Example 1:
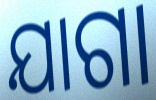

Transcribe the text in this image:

ଯାଗା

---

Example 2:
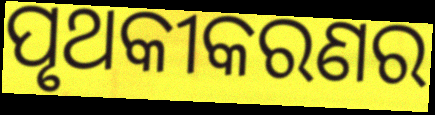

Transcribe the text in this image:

ପୃଥକୀକରଣର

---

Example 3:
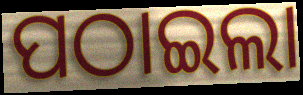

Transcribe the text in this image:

ପଠାଇଲା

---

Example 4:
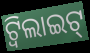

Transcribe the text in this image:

ଟ୍ୱିଲାଇଟ୍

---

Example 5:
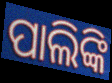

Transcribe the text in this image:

ପାଲିଙ୍କି